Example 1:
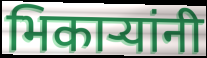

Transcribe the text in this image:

भिकाऱ्यांनी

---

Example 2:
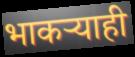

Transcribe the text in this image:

भाकऱ्याही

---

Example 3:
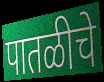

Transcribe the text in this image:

पातळीचे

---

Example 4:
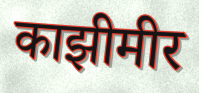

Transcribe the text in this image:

काझीमीर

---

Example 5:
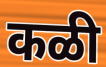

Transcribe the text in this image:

कळी